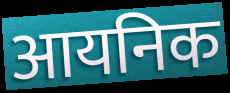
आयनिक